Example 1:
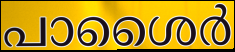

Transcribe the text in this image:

പാശൈർ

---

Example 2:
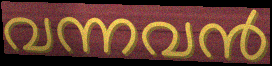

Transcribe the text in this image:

വന്നവൻ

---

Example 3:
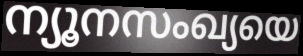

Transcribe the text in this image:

ന്യൂനസംഖ്യയെ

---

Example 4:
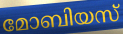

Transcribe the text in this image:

മോബിയസ്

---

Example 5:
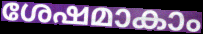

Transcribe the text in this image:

ശേഷമാകാം